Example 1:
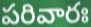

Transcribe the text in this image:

పరివారః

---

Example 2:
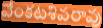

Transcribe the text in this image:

వేంకటశివరావు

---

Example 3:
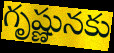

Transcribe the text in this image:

గృష్ణునకు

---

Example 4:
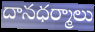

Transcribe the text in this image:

దానధర్మాలు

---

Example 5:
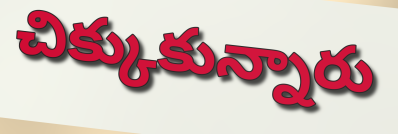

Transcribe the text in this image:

చిక్కుకున్నారు